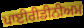
ਪਾਈਰੀਡੀਨੀਅਮ